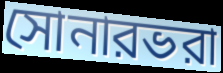
সোনারভরা